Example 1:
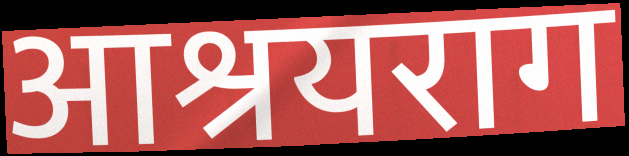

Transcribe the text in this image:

आश्रयराग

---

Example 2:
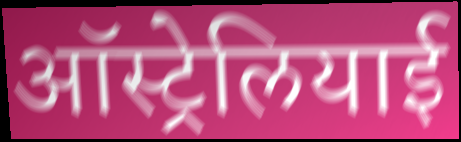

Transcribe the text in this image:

ऑस्ट्रेलियाई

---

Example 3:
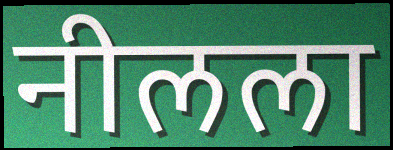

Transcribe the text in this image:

नीलला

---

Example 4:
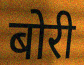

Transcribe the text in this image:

बोरी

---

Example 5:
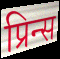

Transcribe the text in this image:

प्रिन्स